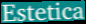
Estetica